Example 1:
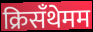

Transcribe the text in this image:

क्रिसँथेमम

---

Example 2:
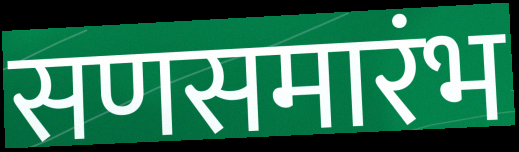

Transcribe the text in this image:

सणसमारंभ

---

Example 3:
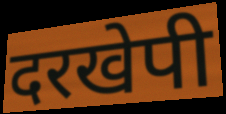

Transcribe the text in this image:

दरखेपी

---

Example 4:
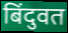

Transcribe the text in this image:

बिंदुवत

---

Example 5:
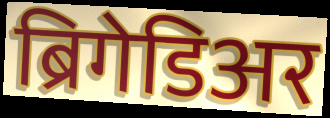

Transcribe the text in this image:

ब्रिगेडिअर